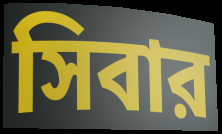
সিবার